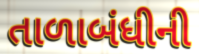
તાળાબંધીની